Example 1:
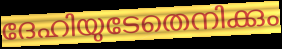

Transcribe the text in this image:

ദേഹിയുടേതെനിക്കും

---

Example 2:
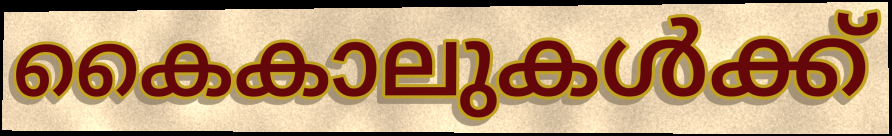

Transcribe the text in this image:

കൈകാലുകൾക്ക്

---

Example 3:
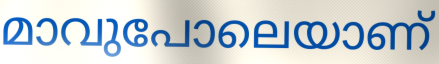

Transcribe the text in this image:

മാവുപോലെയാണ്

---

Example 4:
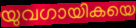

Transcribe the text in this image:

യുവഗായികയെ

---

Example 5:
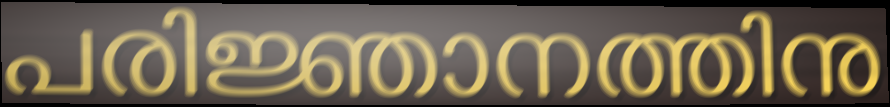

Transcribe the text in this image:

പരിജ്ഞാനത്തിനു